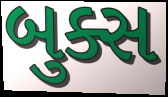
બુક્સ